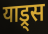
याड्र्स